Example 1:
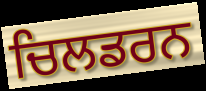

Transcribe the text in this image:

ਚਿਲਡਰਨ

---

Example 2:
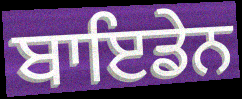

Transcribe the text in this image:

ਬਾਇਡੇਨ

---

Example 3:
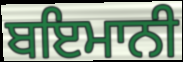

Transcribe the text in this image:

ਬਇਮਾਨੀ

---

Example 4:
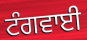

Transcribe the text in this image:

ਟੰਗਵਾਈ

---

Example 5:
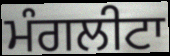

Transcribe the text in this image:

ਮੰਗਲੀਟਾ